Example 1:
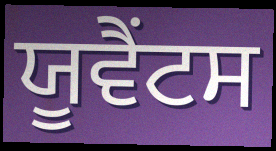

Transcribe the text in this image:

ਯੂਵੈਂਟਸ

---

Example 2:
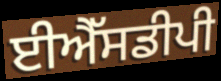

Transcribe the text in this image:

ਈਐੱਸਡੀਪੀ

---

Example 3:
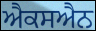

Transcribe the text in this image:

ਐਕਸਐਨ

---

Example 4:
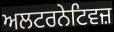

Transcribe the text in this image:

ਅਲਟਰਨੇਟਿਵਜ਼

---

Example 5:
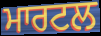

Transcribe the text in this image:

ਮਾਰਟਲ